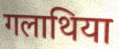
गलाथिया